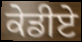
ਕੇਡੀਏ